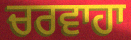
ਚਰਵਾਹਾ